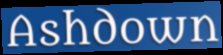
Ashdown